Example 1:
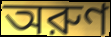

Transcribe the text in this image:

অরুণ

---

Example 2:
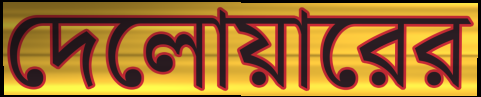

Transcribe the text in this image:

দেলোয়ারের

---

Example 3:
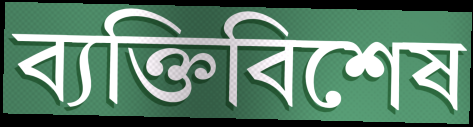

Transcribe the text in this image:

ব্যক্তিবিশেষ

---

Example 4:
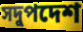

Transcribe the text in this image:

সদুপদেশ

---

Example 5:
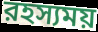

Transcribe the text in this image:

রহস্যময়